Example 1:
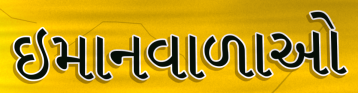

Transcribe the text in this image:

ઇમાનવાળાઓ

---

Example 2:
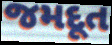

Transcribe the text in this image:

જમદૂત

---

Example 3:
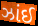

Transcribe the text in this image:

ઝાંઈ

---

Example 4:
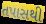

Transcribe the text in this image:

તપાસથી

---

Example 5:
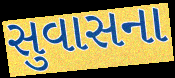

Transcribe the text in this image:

સુવાસના